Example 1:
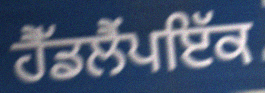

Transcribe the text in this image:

ਹੈੱਡਲੈਂਪਇੱਕ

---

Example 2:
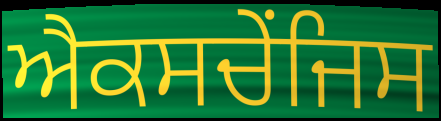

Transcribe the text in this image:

ਐਕਸਚੇਂਜਿਸ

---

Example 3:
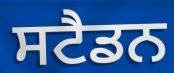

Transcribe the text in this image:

ਸਟੈਡਨ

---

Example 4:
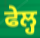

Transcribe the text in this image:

ਫੇਲ੍ਹ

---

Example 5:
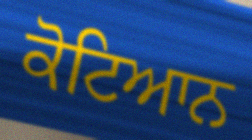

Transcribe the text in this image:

ਕੋਟਿਆਨ